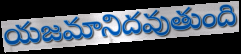
యజమానిదవుతుంది